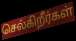
செல்கிறீர்கள்